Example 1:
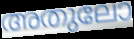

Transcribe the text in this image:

അതുലോ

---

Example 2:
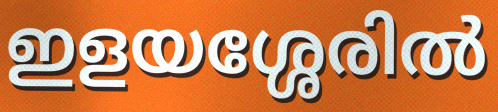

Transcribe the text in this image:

ഇളയശ്ശേരിൽ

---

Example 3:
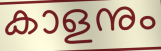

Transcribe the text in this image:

കാളനും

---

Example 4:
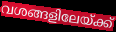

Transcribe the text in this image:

വശങ്ങളിലേയ്ക്ക്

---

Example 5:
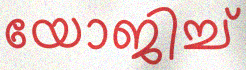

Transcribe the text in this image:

യോജിച്ച്